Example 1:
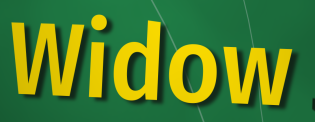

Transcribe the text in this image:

Widow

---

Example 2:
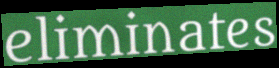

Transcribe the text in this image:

eliminates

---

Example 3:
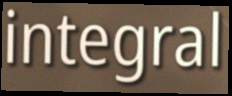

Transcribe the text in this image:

integral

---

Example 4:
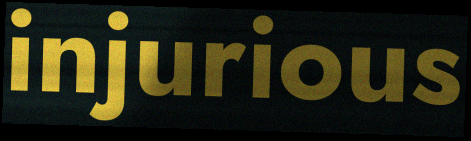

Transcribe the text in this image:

injurious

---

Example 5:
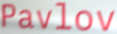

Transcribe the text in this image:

Pavlov